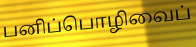
பனிப்பொழிவைப்